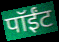
पॉईंट